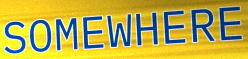
SOMEWHERE